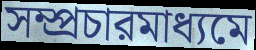
সম্প্রচারমাধ্যমে